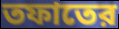
তফাতের